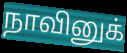
நாவினுக்